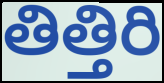
తిత్తిరి